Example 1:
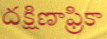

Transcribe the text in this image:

దక్షిణాఫ్రికా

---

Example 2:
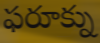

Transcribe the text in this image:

ఫరూక్ను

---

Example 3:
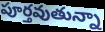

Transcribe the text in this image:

పూర్తవుతున్నా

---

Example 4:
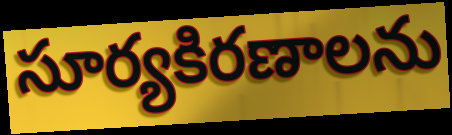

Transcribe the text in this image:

సూర్యకిరణాలను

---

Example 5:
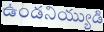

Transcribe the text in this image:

ఉండనియ్యుడి